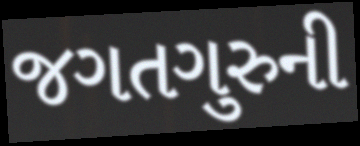
જગતગુરુની